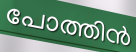
പോത്തിൻ